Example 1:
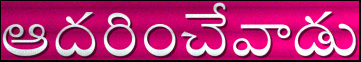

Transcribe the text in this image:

ఆదరించేవాడు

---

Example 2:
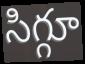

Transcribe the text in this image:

సిగ్గూ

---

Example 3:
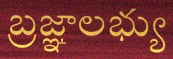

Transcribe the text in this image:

బ్రజ్ఞాలభ్యు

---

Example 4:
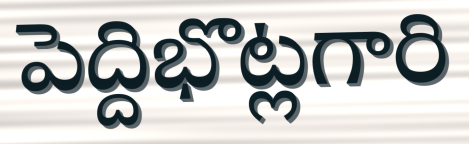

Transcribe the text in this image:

పెద్దిభొట్లగారి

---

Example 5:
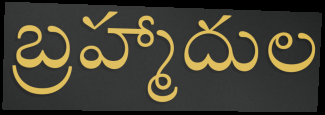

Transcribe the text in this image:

బ్రహ్మాదుల